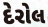
દેરોલ